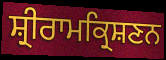
ਸ਼੍ਰੀਰਾਮਕ੍ਰਿਸ਼ਣਨ